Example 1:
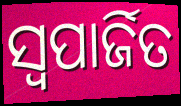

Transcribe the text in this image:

ସ୍ଵପାର୍ଜିତ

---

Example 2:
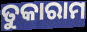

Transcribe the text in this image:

ତୁକାରାମ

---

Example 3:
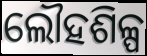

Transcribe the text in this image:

ଲୌହଶିଳ୍ପ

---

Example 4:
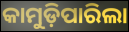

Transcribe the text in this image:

କାମୁଡ଼ିପାରିଲା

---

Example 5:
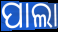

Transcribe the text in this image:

ପାଲା